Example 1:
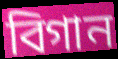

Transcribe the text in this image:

বিগান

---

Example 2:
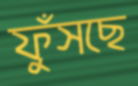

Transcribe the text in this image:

ফুঁসছে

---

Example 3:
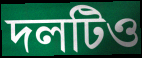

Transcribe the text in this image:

দলটিও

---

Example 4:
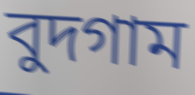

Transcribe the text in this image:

বুদগাম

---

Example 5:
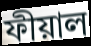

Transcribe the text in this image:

ফীয়াল